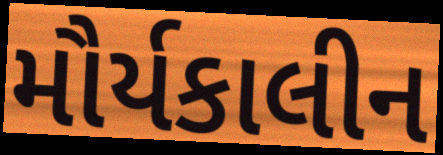
મૌર્યકાલીન